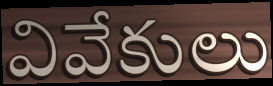
వివేకులు